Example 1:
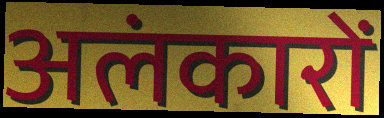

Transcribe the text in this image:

अलंकारों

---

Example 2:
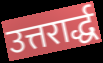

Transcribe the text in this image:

उत्तरार्द्ध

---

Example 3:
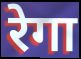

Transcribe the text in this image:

रेगा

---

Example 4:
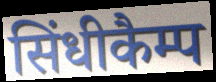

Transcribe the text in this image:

सिंधीकैम्प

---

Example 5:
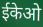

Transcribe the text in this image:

ईकेओ